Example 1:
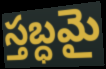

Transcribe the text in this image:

స్తబ్ధమై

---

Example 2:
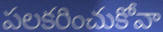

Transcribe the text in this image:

పలకరించుకోవా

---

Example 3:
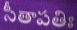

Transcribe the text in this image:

సీతాపతిః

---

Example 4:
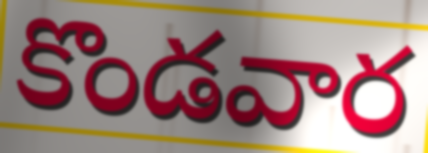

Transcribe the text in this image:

కొండవార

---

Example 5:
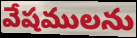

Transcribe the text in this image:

వేషములను